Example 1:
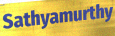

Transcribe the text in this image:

Sathyamurthy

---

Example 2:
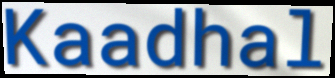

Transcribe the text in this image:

Kaadhal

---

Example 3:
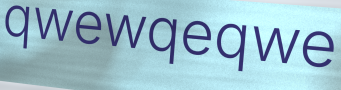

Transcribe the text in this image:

qwewqeqwe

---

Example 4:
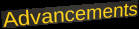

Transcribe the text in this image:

Advancements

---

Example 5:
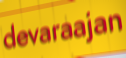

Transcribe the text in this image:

devaraajan